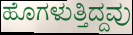
ಹೊಗಳುತ್ತಿದ್ದವು